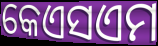
କେଏସଏମ